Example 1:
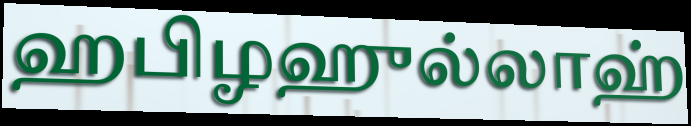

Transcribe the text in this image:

ஹபிழஹுல்லாஹ்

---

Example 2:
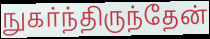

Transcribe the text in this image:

நுகர்ந்திருந்தேன்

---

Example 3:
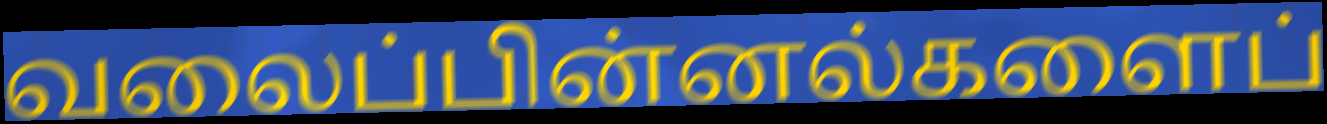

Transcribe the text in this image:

வலைப்பின்னல்களைப்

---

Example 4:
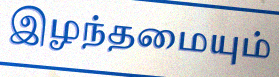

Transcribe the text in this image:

இழந்தமையும்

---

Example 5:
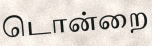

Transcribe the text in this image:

டொன்றை